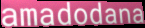
amadodana